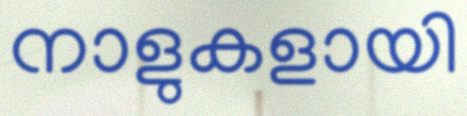
നാളുകളായി